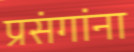
प्रसंगांना